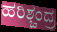
ಹರಿಶ್ಚಂದ್ರ